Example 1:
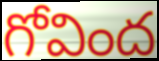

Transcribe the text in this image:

గోవింద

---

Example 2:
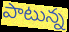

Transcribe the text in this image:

పాటున్న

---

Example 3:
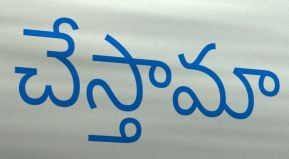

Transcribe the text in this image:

చేస్తామా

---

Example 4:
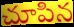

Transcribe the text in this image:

చూపిన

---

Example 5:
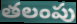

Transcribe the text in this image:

తలంపు